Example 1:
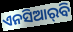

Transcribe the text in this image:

ଏନସିଆର୍‌ବି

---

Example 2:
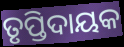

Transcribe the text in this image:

ତୃପ୍ତିଦାୟକ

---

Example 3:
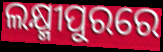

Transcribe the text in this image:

ଲକ୍ଷ୍ମୀପୁରରେ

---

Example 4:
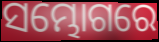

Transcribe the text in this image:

ସମ୍ଭୋଗରେ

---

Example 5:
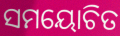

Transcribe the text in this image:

ସମୟୋଚିତ